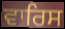
ਵਾਰਿਸ